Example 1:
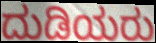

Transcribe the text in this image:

ದುಡಿಯರು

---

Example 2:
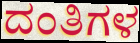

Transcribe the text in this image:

ದಂತಿಗಳ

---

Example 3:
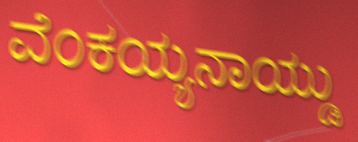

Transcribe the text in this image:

ವೆಂಕಯ್ಯನಾಯ್ಡು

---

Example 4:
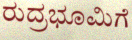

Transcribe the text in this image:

ರುದ್ರಭೂಮಿಗೆ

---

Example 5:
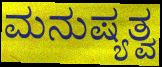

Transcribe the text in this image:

ಮನುಷ್ಯತ್ವ